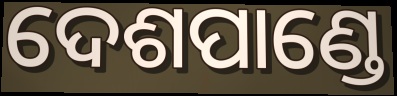
ଦେଶପାଣ୍ଡେ